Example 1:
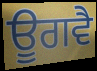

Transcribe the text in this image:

ਊਗਵੈ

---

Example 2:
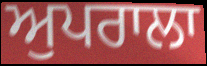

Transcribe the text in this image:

ਅੁਪਰਾਲਾ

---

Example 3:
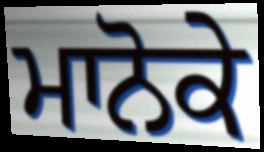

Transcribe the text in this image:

ਮਾਨੋਕੇ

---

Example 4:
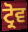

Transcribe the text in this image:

ਟ੍ਰੋਵ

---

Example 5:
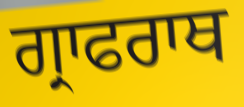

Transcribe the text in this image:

ਗ੍ਰਾਫਰਾਥ